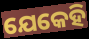
ଯେକେହି